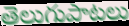
తెలుగుపాటలు